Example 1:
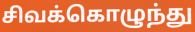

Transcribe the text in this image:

சிவக்கொழுந்து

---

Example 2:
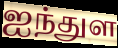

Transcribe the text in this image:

ஐந்துள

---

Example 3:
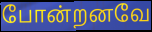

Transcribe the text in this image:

போன்றனவே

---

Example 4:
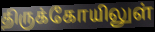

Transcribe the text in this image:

திருக்கோயிலுள்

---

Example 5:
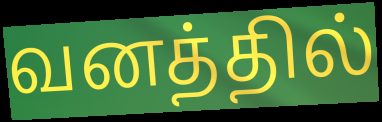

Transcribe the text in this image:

வனத்தில்